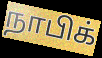
நாபிக்